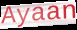
Ayaan